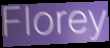
Florey